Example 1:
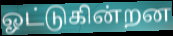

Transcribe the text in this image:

ஓட்டுகின்றன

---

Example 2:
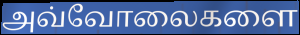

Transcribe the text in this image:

அவ்வோலைகளை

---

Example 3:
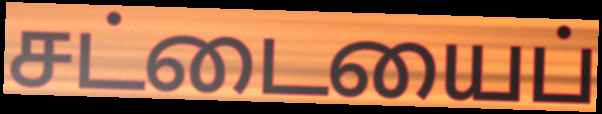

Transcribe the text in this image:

சட்டையைப்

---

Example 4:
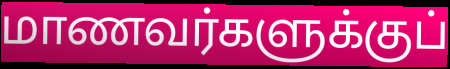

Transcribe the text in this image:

மாணவர்களுக்குப்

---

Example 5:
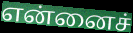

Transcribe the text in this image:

என்னைச்